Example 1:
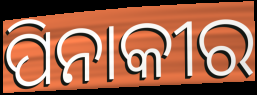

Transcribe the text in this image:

ପିନାକୀର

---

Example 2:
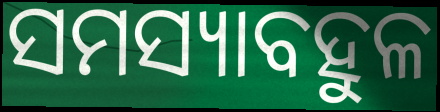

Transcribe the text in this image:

ସମସ୍ୟାବହୁଳ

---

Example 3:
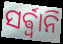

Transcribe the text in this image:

ସର୍ଵ୍ଵାନି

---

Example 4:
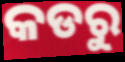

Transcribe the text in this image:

କଡରୁ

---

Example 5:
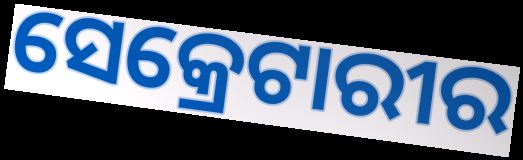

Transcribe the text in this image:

ସେକ୍ରେଟାରୀର